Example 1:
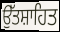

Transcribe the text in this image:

ਉੱਤਸ਼ਾਹਿਤ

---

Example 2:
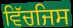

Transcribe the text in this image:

ਵਿੱਚਜਿਸ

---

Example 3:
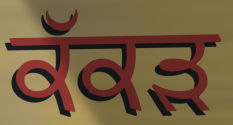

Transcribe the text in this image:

ਕੱਕਡ਼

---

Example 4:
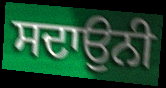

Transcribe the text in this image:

ਸਦਾਉਨੀ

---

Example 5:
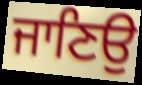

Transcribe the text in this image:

ਜਾਣਿਉ